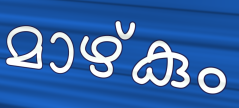
മാഴ്കും